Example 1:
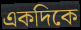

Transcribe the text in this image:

একদিকে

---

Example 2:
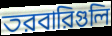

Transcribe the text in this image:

তরবারিগুলি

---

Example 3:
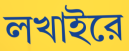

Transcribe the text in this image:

লখাইরে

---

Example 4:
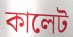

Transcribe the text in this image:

কালেট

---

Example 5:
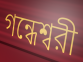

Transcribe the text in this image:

গন্ধেশ্বরী